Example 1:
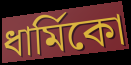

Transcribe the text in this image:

ধার্মিকো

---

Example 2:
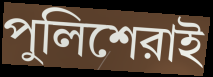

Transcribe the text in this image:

পুলিশেরাই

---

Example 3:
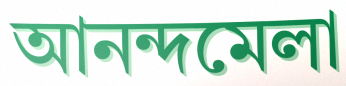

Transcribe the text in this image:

আনন্দমেলা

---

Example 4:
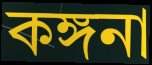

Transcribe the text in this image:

কঙ্গনা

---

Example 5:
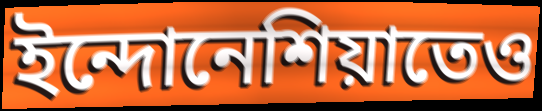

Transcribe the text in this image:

ইন্দোনেশিয়াতেও